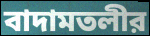
বাদামতলীর